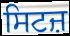
ਸਿਟਜ਼